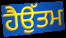
ਹੈਉੱਤਮ